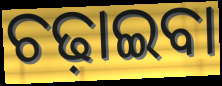
ଚଢ଼ାଇବା